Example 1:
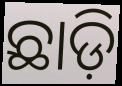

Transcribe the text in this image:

ଛାଡ଼ି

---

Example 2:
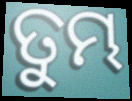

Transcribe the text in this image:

ତୁମ୍ଭ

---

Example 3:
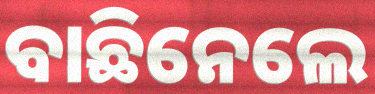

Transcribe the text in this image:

ବାଛିନେଲେ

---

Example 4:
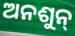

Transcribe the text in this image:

ଅନଶୁନ୍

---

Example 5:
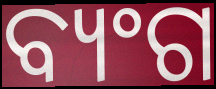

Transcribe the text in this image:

ବ୍ୟଂଗ